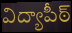
విద్యాపీఠ్